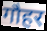
गौहर